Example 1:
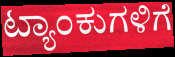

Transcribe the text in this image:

ಟ್ಯಾಂಕುಗಳಿಗೆ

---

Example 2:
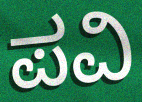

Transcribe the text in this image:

ಪವಿ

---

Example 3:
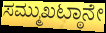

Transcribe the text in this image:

ಸಮ್ಮುಖಟ್ಠಾನೇ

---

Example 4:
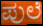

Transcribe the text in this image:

ಪುಲೆ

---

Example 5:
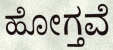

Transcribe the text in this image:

ಹೋಗ್ತವೆ